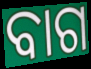
ବାଗ